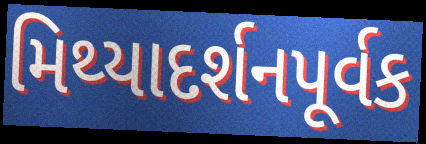
મિથ્યાદર્શનપૂર્વક